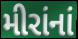
મીરાંનાં